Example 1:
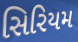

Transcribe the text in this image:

સિરિયમ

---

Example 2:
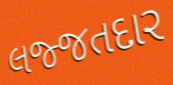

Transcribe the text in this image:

લજ્જતદાર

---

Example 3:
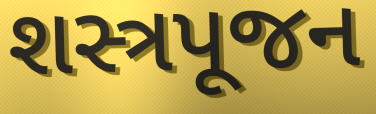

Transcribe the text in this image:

શસ્ત્રપૂજન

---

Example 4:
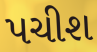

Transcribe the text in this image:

પચીશ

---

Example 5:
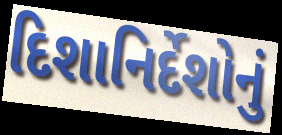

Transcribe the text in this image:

દિશાનિર્દેશોનું